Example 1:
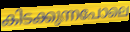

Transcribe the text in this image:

കിടക്കുന്നപോലെ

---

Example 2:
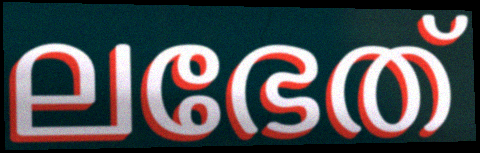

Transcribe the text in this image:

ലഭേത്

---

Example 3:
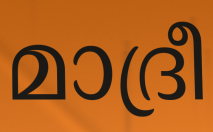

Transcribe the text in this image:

മാദ്രീ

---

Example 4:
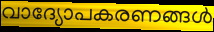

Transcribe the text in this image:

വാദ്യോപകരണങ്ങൾ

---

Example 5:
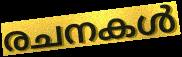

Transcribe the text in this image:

രചനകൾ